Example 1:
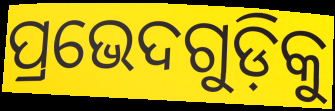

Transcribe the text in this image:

ପ୍ରଭେଦଗୁଡ଼ିକୁ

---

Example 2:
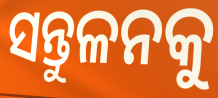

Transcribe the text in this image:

ସନ୍ତୁଳନକୁ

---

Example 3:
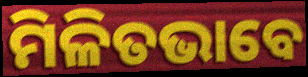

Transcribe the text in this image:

ମିଳିତଭାବେ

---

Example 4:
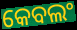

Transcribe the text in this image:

କେବଲଂ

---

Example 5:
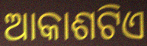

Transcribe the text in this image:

ଆକାଶଟିଏ